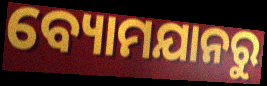
ବ୍ୟୋମଯାନରୁ